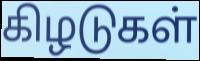
கிழடுகள்